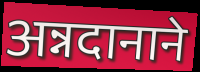
अन्नदानाने